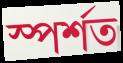
স্পৰ্শত